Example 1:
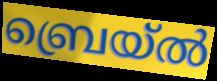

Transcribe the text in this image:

ബ്രെയ്ൽ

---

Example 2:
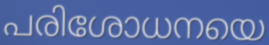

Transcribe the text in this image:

പരിശോധനയെ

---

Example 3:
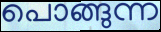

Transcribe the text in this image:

പൊങ്ങുന്ന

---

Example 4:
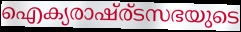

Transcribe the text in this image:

ഐക്യരാഷ്ര്ടസഭയുടെ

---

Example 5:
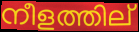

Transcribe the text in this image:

നീളത്തില്